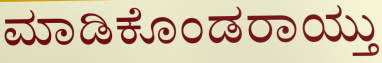
ಮಾಡಿಕೊಂಡರಾಯ್ತು